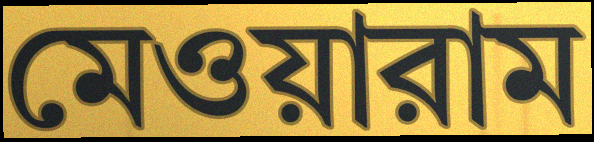
মেওয়ারাম